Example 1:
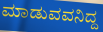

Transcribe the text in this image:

ಮಾಡುವವನಿದ್ದ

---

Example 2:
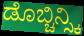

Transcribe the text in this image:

ಡೊಬ್ಚಿನ್ಸ್ಕಿ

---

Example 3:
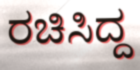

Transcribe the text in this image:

ರಚಿಸಿದ್ದ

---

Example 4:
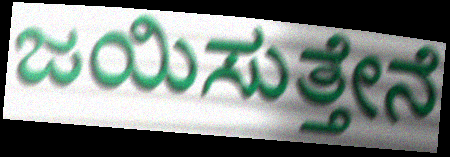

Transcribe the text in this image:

ಜಯಿಸುತ್ತೇನೆ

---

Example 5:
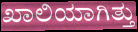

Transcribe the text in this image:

ಖಾಲಿಯಾಗಿತ್ತು